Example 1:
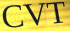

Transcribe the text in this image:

CVT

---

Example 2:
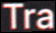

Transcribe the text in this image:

Tra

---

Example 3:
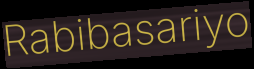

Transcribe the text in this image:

Rabibasariyo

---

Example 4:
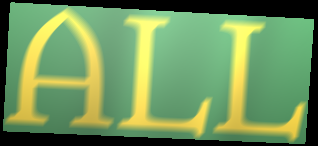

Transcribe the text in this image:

ALL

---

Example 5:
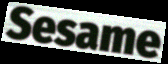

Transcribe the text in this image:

Sesame